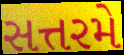
સત્તરમે